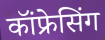
कॉंफ्रेसिंग